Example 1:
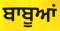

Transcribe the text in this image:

ਬਾਬੂਆਂ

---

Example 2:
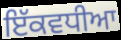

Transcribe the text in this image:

ਇੱਕਵਧੀਆ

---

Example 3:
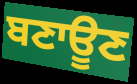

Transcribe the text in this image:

ਬਣਾਊਣ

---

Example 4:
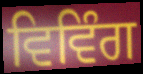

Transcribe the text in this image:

ਵਿਵਿੰਗ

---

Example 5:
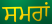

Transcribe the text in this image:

ਸਮਰਾਂ